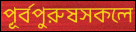
পূৰ্বপুৰুষসকলে